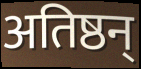
अतिष्ठन्